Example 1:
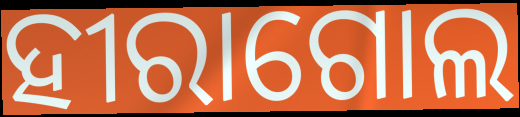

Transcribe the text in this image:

ହୀରାଗୋଲ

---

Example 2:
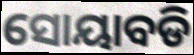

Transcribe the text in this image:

ସୋୟାବଡି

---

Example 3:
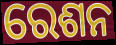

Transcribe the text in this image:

ରେଶନ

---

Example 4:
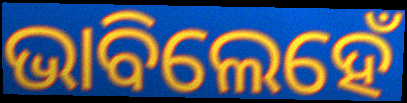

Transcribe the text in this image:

ଭାବିଲେହେଁ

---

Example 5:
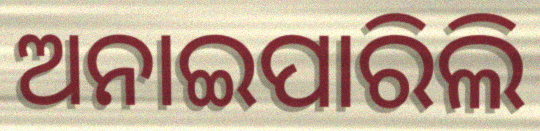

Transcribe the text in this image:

ଅନାଇପାରିଲି